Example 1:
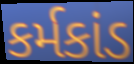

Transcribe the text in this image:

કર્મકાંડ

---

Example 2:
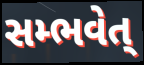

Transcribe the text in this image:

સમ્ભવેત્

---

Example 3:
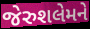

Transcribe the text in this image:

જેરુશલેમને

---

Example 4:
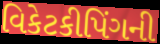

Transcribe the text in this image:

વિકેટકીપિંગની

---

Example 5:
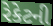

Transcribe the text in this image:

રેકેટની